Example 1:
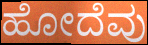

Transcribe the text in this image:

ಹೋದೆವು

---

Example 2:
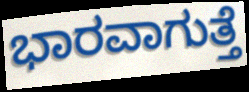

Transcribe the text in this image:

ಭಾರವಾಗುತ್ತೆ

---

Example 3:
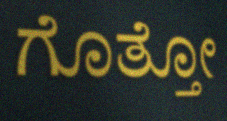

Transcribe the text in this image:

ಗೊತ್ತೋ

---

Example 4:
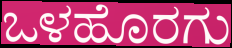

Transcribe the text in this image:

ಒಳಹೊರಗು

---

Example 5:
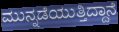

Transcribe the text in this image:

ಮುನ್ನಡೆಯುತ್ತಿದ್ದಾನೆ